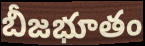
బీజభూతం